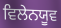
ਵਿਲੇਨਯੂਵ